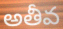
అతీవ